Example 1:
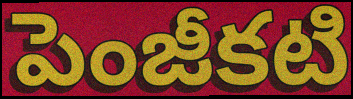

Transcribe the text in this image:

పెంజీకటి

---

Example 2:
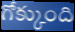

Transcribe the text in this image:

గోక్కుంది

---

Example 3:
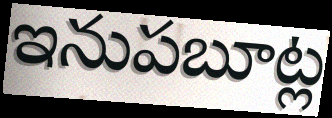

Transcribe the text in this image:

ఇనుపబూట్ల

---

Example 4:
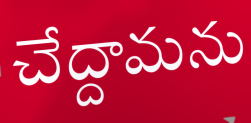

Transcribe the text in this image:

చేద్దామను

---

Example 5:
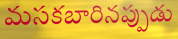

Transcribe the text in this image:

మసకబారినప్పుడు